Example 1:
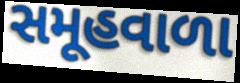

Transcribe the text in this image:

સમૂહવાળા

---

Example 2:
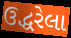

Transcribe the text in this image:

ઉદ્ધરેલા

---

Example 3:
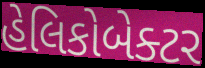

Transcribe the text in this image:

હેલિકોબેક્ટર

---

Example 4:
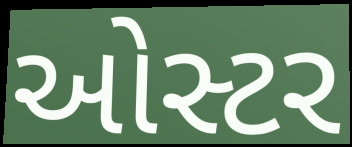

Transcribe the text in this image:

ઓસ્ટર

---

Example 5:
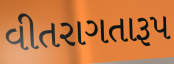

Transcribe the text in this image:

વીતરાગતારૂપ